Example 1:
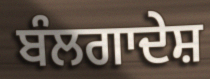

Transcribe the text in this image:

ਬੰਲਗਾਦੇਸ਼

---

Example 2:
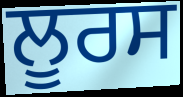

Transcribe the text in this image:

ਲੂਰਸ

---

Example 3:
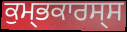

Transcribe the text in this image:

ਕੁਮ੍ਭਕਾਰਸ੍ਸ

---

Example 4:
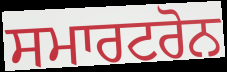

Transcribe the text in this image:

ਸਮਾਰਟਰੋਨ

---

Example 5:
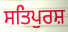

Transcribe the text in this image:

ਸਤਿਪੁਰਸ਼